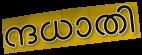
ന്ദധാതി